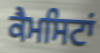
ਕੈਮਸਿਟਾਂ